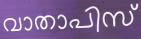
വാതാപിസ്